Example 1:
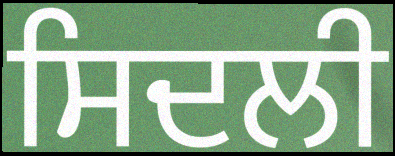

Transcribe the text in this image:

ਸਿਦਲੀ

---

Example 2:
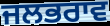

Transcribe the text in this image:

ਜਲਭਰਾਵ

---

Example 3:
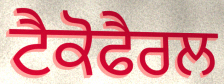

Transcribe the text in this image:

ਟੈਕੋਫੈਰਲ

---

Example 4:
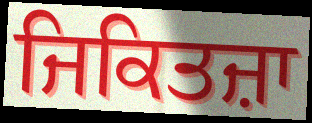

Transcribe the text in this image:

ਜਿਕਿਤਜ਼ਾ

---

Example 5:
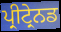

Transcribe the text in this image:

ਪ੍ਰੀਟ੍ਰੇਨਡ